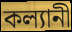
কল্যানী